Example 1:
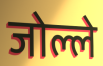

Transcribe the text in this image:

जोल्ले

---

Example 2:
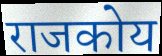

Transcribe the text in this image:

राजकोय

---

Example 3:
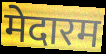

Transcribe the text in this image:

मेदारम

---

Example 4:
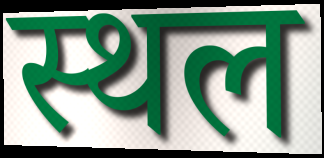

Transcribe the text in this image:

स्थल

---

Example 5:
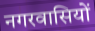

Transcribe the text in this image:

नगरवासियों